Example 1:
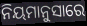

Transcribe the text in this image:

ନିୟମାନୁସାରେ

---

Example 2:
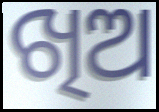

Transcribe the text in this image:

ଖିଅ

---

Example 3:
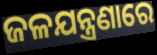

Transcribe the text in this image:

ଜଳଯନ୍ତ୍ରଣାରେ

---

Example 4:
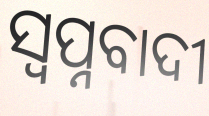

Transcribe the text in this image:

ସ୍ୱପ୍ନବାଦୀ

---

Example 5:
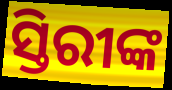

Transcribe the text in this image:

ସ୍ତିରୀଙ୍କ